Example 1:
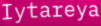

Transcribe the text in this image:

Iytareya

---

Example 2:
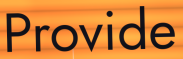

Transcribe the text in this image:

Provide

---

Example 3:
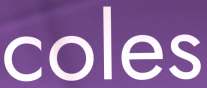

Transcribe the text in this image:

coles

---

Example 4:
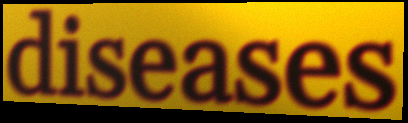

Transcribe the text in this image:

diseases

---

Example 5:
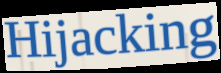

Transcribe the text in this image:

Hijacking